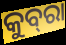
କୁବ୍‍ରା